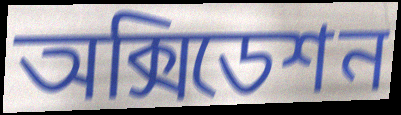
অক্সিডেশন